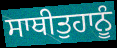
ਸਾਥੀਤੁਹਾਨੂੰ